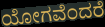
ಯೋಗವೆಂದರೆ